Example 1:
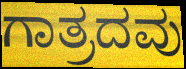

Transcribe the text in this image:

ಗಾತ್ರದವು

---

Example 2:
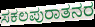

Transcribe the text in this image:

ಸಕಲಪುರಾತನರ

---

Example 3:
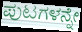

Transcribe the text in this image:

ಪುಟಗಳನ್ನೇ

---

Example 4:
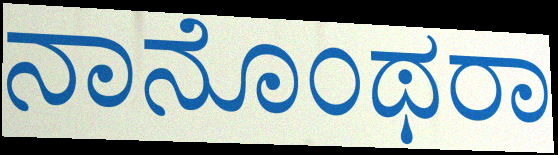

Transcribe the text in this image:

ನಾನೊಂಥರಾ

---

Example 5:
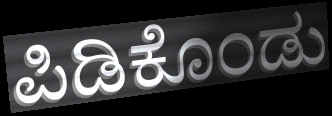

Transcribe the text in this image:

ಪಿಡಿಕೊಂಡು